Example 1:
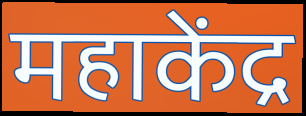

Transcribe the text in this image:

महाकेंद्र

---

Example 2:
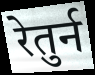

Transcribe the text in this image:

रेतुर्न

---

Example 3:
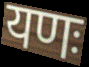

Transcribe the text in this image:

यणः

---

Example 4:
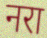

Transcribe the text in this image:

नरा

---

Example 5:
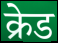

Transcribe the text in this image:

क्रेड